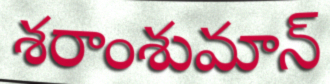
శరాంశుమాన్